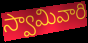
స్వామివారి